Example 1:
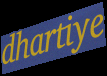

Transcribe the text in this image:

dhartiye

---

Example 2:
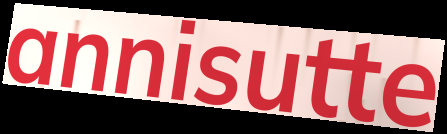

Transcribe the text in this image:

annisutte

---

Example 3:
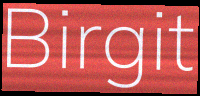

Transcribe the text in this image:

Birgit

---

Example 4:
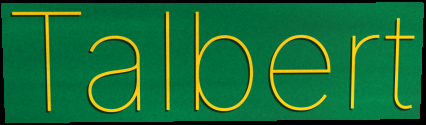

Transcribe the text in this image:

Talbert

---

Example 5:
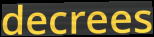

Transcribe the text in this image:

decrees